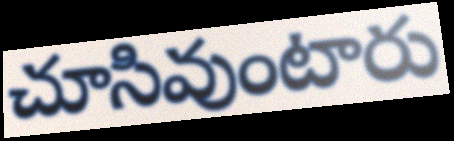
చూసివుంటారు